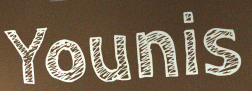
Younis